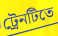
ট্রেনটিতে